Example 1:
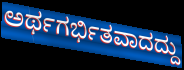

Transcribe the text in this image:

ಅರ್ಥಗರ್ಭಿತವಾದದ್ದು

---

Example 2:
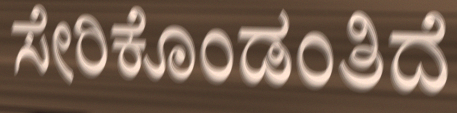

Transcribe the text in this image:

ಸೇರಿಕೊಂಡಂತಿದೆ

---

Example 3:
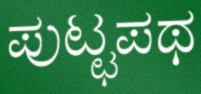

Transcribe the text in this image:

ಪುಟ್ಟಪಥ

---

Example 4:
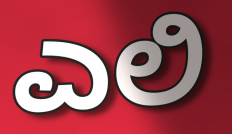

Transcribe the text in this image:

ಎಲಿ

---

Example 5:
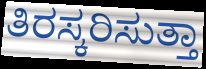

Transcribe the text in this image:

ತಿರಸ್ಕರಿಸುತ್ತಾ